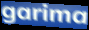
garima